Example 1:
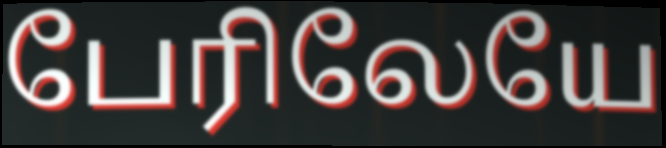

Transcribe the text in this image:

பேரிலேயே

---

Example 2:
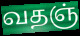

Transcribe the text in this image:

வதஞ்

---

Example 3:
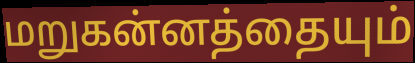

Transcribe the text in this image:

மறுகன்னத்தையும்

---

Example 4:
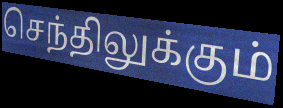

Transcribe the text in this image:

செந்திலுக்கும்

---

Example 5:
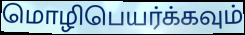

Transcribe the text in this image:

மொழிபெயர்க்கவும்